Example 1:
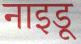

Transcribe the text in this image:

नाइडू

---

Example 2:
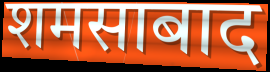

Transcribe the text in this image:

शमसाबाद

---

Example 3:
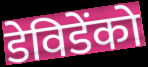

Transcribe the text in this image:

डेविडेंको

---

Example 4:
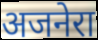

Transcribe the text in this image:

अजनेरा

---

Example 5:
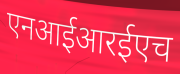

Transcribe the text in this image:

एनआईआरईएच